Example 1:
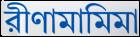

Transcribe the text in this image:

রীণামামিমা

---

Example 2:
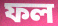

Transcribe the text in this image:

ফল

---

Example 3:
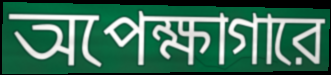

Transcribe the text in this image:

অপেক্ষাগারে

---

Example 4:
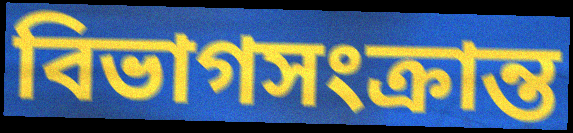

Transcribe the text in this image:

বিভাগসংক্রান্ত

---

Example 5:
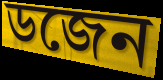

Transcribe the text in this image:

ডজেন